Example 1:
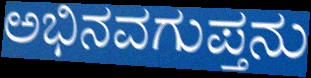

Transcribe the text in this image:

ಅಭಿನವಗುಪ್ತನು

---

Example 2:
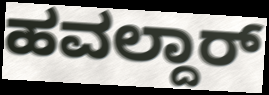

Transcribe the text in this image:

ಹವಲ್ದಾರ್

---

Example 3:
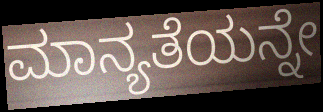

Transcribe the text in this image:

ಮಾನ್ಯತೆಯನ್ನೇ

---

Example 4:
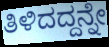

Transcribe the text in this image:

ತಿಳಿದದ್ದನ್ನೇ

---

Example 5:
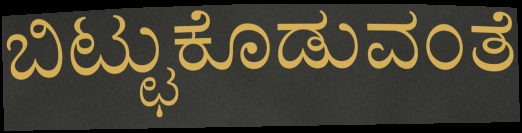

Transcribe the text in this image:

ಬಿಟ್ಟುಕೊಡುವಂತೆ